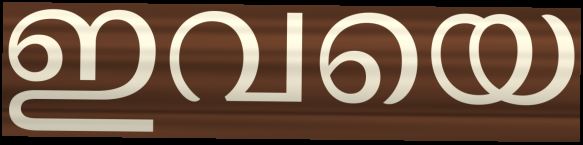
ഇവയെ